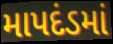
માપદંડમાં